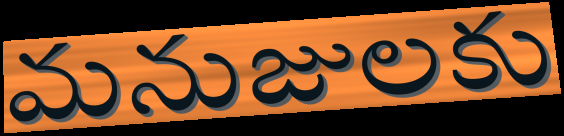
మనుజులకు